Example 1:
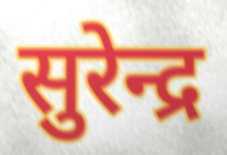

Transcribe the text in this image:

सुरेन्द्र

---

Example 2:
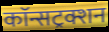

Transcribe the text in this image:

कॉन्सट्रक्शन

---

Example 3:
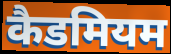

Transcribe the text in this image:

कैडमियम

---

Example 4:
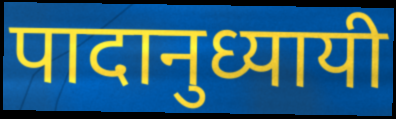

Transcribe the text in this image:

पादानुध्यायी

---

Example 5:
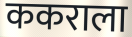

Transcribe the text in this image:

ककराला